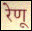
रेणू